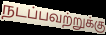
நடப்பவற்றுக்கு